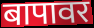
बापावर